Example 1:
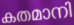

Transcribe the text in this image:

കതമാനി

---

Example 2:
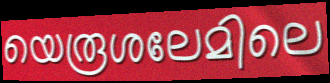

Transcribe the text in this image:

യെരൂശലേമിലെ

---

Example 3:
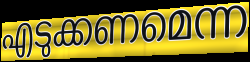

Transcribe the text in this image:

എടുക്കണമെന്ന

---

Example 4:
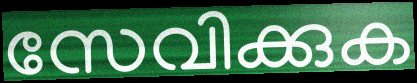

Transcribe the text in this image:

സേവിക്കുക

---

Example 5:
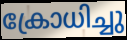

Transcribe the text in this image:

ക്രോധിച്ചു